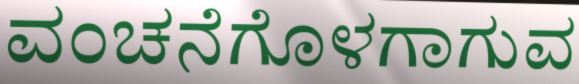
ವಂಚನೆಗೊಳಗಾಗುವ